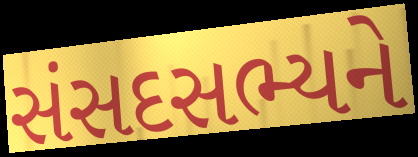
સંસદસભ્યને